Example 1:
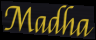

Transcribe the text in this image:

Madha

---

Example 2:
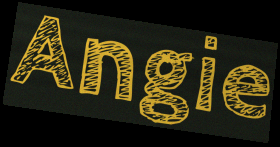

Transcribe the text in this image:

Angie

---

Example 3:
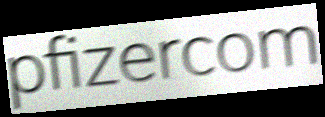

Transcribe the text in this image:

pfizercom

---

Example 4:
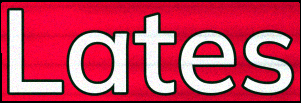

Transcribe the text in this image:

Lates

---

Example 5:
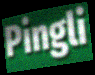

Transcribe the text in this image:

Pingli